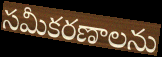
సమీకరణాలను